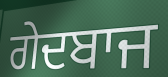
ਗੇਦਬਾਜ